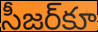
సీజర్‌కూ